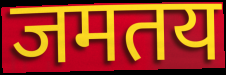
जमतय